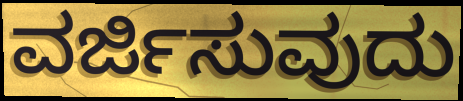
ವರ್ಜಿಸುವುದು